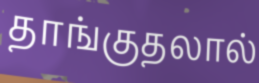
தாங்குதலால்